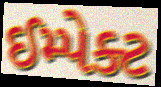
ઈમ્પેક્ટ